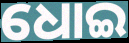
ଧୋଇ